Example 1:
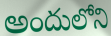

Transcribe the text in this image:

అందులోని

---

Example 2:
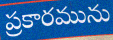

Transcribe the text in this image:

ప్రకారమును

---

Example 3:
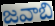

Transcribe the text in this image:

జవాబి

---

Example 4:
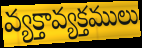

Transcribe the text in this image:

వ్యక్తావ్యక్తములు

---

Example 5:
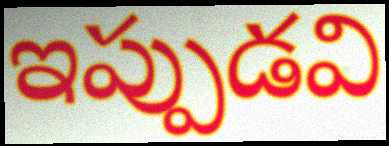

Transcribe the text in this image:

ఇప్పుడవి